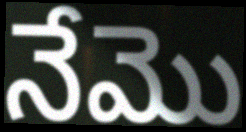
నేమొ